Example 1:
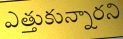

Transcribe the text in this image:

ఎత్తుకున్నారని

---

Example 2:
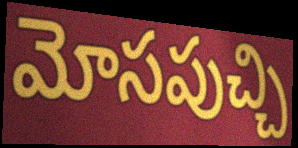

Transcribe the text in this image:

మోసపుచ్చి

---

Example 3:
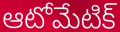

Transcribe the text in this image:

ఆటోమేటిక్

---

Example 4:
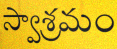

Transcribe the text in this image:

స్వాశ్రమం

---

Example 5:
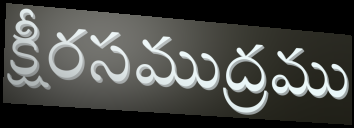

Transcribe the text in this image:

క్షీరసముద్రము